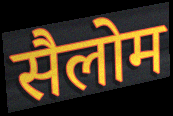
सैलोम